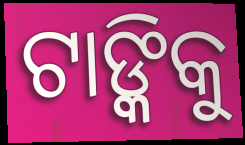
ଟାଙ୍କିକୁ